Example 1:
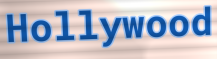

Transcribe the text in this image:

Hollywood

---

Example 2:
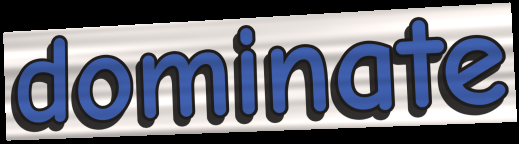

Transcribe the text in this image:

dominate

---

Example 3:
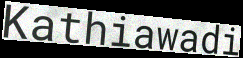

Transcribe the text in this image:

Kathiawadi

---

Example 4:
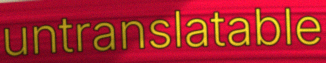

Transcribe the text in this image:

untranslatable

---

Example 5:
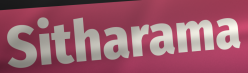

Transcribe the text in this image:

Sitharama